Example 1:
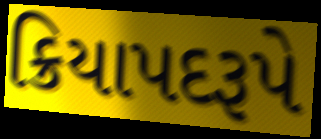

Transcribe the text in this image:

ક્રિયાપદરૂપે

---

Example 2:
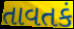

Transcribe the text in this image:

તાવતકં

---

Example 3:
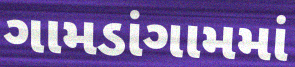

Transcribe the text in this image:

ગામડાંગામમાં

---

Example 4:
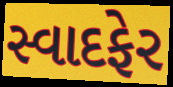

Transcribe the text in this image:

સ્વાદફેર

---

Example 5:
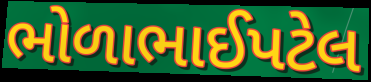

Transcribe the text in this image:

ભોળાભાઈપટેલ